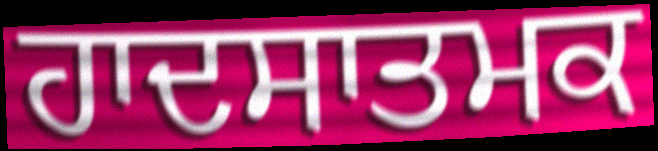
ਹਾਦਸਾਤਮਕ